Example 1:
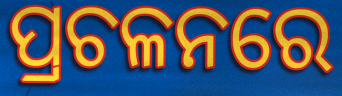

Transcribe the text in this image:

ପ୍ରଚଳନରେ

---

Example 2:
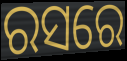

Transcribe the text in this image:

ରସରେ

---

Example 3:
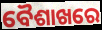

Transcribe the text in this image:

ବୈଶାଖରେ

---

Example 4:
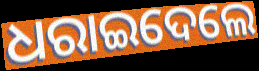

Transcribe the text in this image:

ଧରାଇଦେଲେ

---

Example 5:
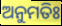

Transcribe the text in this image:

ଅନୁମତିଃ